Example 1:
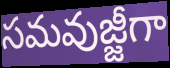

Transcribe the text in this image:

సమవుజ్జీగా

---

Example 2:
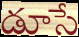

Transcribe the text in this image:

డూసే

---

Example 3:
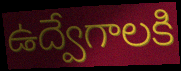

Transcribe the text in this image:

ఉద్వేగాలకి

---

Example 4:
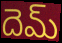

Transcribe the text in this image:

దెమ్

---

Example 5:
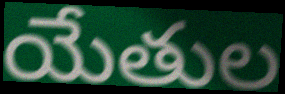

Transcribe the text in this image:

యేతుల